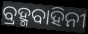
ବ୍ରହ୍ମବାହିନୀ